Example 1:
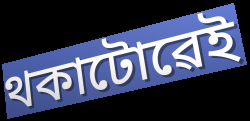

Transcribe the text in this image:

থকাটোৱেই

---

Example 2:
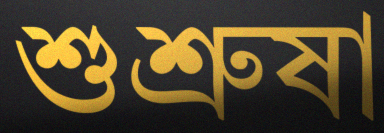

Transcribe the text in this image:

শুশ্ৰুষা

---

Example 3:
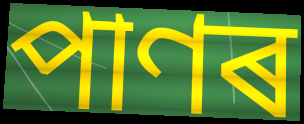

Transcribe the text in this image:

পাণৰ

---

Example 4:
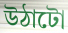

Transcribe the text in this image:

উঠাটো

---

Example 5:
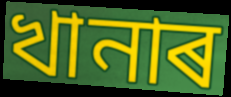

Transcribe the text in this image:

খানাৰ